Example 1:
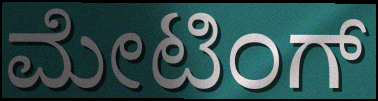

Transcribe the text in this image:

ಮೇಟಿಂಗ್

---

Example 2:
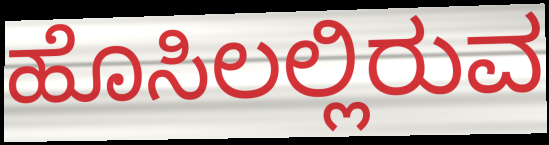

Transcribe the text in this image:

ಹೊಸಿಲಲ್ಲಿರುವ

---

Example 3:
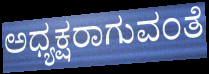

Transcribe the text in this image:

ಅಧ್ಯಕ್ಷರಾಗುವಂತೆ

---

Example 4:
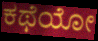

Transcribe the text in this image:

ಕಥೆಯೋ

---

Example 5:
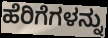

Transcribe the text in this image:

ಹೆರಿಗೆಗಳನ್ನು